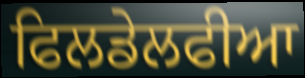
ਫਿਲਡੇਲਫੀਆ